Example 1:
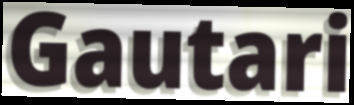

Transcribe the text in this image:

Gautari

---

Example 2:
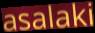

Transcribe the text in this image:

asalaki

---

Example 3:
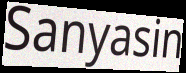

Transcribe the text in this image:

Sanyasin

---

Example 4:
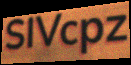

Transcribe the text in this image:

SIVcpz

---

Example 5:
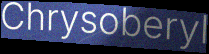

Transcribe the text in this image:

Chrysoberyl